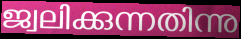
ജ്വലിക്കുന്നതിന്നു